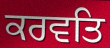
ਕਰਵਤਿ